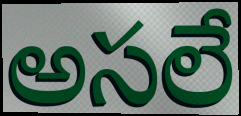
అసలే